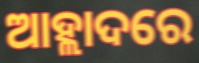
ଆହ୍ଲାଦରେ